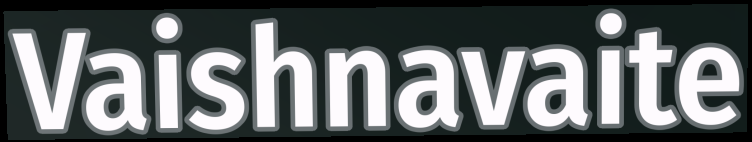
Vaishnavaite